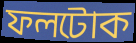
ফলটোক